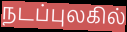
நடப்புலகில்